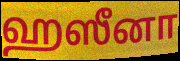
ஹஸீனா